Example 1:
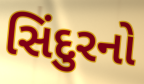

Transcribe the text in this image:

સિંદુરનો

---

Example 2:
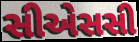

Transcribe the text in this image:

સીએસસી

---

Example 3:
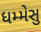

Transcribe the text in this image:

ધમ્મેસુ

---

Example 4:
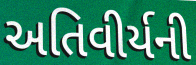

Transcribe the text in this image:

અતિવીર્યની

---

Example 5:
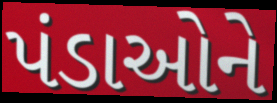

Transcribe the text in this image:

પંડાઓને